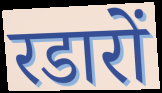
रडारों